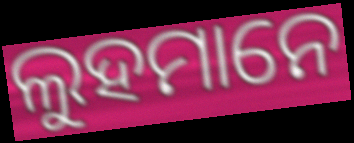
ଲୁହମାନେ